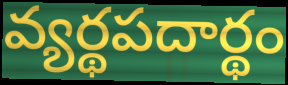
వ్యర్థపదార్థం